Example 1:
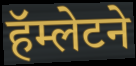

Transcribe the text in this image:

हॅम्लेटने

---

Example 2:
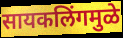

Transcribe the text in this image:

सायकलिंगमुळे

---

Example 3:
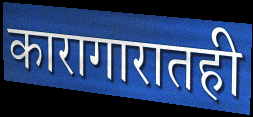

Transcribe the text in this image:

कारागारातही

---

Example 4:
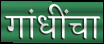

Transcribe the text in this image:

गांधींचा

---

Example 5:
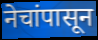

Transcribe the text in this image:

नेचांपासून